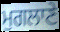
ਮੁਗਲਾਣੇ